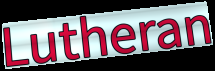
Lutheran